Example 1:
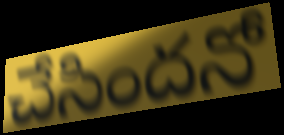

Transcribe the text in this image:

చేసిందనో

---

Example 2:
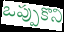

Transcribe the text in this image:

ఒప్పుకొని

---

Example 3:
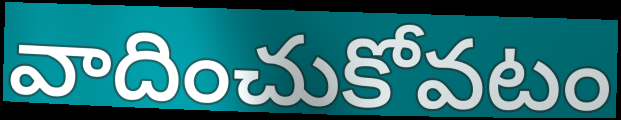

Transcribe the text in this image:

వాదించుకోవటం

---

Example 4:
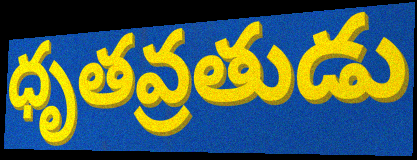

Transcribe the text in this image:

ధృతవ్రతుడు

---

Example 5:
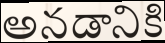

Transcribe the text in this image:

అనడానికి